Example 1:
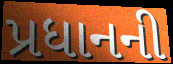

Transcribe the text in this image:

પ્રધાનની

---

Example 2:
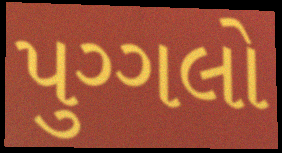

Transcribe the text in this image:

પુગ્ગલો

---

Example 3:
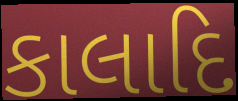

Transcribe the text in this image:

કાલાદિ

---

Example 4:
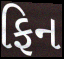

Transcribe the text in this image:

ફિન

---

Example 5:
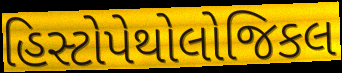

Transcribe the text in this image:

હિસ્ટોપેથોલોજિકલ